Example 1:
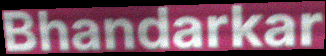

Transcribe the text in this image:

Bhandarkar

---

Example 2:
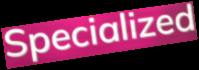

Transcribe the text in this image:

Specialized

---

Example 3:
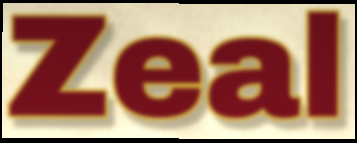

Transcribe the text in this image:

Zeal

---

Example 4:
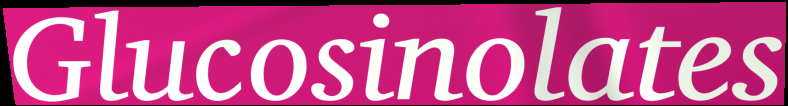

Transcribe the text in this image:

Glucosinolates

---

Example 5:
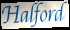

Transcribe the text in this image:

Halford